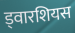
ड्वारशियस